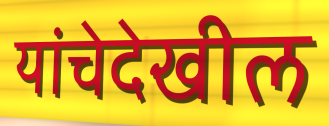
यांचेदेखील